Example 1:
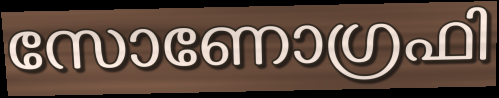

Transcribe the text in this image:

സോണോഗ്രഫി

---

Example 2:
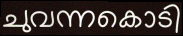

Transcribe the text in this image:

ചുവന്നകൊടി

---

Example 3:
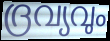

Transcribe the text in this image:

ദ്രവ്യവും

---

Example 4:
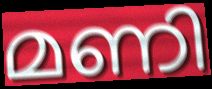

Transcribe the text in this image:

മണി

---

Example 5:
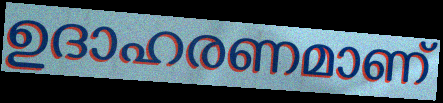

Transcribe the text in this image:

ഉദാഹരണമാണ്